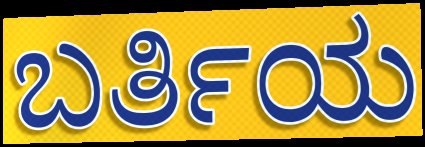
ಬರ್ತಿಯ